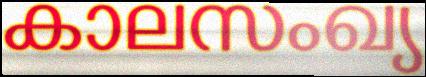
കാലസംഖ്യ